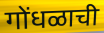
गोंधळाची